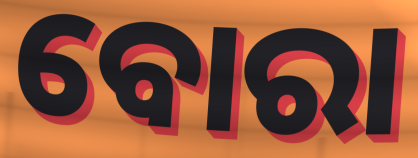
ବୋରା